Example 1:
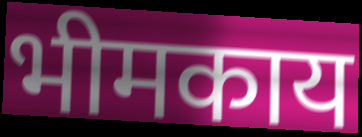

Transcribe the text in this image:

भीमकाय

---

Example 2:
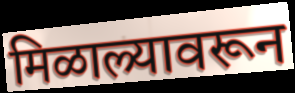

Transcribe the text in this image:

मिळाल्यावरून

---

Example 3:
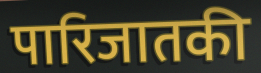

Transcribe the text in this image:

पारिजातकी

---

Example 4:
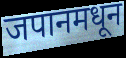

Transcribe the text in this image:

जपानमधून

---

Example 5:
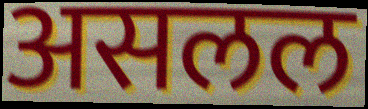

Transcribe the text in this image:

असलल